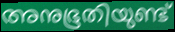
അനുഭൂതിയുണ്ട്